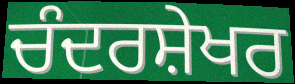
ਚੰਦਰਸ਼ੇਖਰ